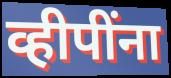
व्हीपींना